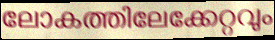
ലോകത്തിലേക്കേറ്റവും